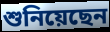
শুনিয়েছেন